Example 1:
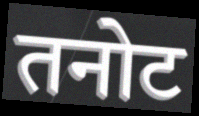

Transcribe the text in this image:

तनोट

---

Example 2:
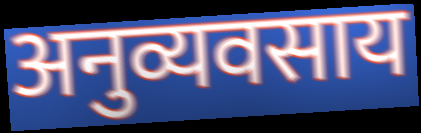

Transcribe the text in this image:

अनुव्यवसाय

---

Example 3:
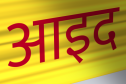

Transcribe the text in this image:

आइद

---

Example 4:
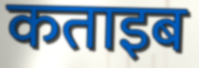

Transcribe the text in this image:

कताइब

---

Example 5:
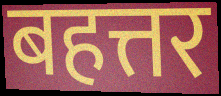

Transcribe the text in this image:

बहत्तर